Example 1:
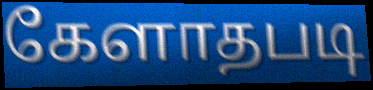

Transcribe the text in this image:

கேளாதபடி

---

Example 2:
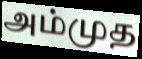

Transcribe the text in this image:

அம்முத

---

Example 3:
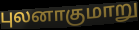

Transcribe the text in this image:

புலனாகுமாறு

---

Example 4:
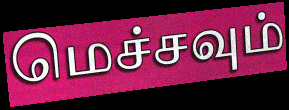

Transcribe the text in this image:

மெச்சவும்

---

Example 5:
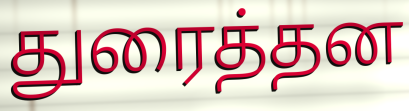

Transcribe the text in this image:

துரைத்தன